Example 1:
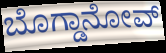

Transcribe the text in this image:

ಬೊಗ್ಡಾನೋವ್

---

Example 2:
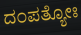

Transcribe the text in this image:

ದಂಪತ್ಯೋಃ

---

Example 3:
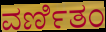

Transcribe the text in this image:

ವರ್ಣಿತಂ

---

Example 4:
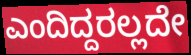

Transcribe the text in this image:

ಎಂದಿದ್ದರಲ್ಲದೇ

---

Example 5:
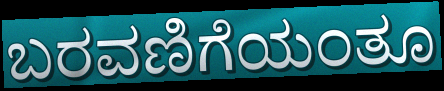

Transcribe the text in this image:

ಬರವಣಿಗೆಯಂತೂ